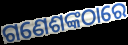
ଗଣେଶଙ୍କଠାରେ